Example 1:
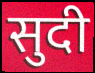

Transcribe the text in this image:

सुदी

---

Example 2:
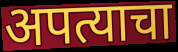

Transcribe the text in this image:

अपत्याचा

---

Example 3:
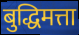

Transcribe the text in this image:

बुद्धिमत्ता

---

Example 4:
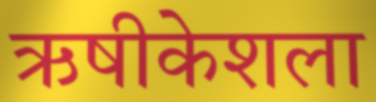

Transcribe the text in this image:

ऋषीकेशला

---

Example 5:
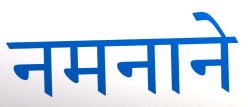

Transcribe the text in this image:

नमनाने